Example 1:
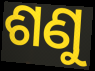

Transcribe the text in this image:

ଶଣୁ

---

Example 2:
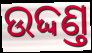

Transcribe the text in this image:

ଉଦ୍ଦଣ୍ତ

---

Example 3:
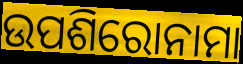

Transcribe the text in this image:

ଉପଶିରୋନାମା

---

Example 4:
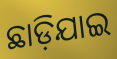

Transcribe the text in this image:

ଛାଡ଼ିଯାଇ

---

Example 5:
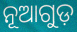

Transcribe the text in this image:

ନୂଆଗୁଡ଼